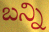
బన్ని